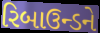
રિબાઉન્ડને